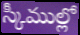
స్కీముల్లో